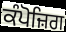
ਕੰਪੋਜ਼ਿਗ